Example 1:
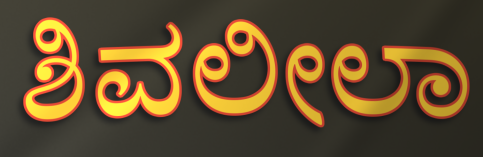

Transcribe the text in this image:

ಶಿವಲೀಲಾ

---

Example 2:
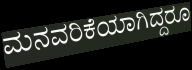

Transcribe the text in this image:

ಮನವರಿಕೆಯಾಗಿದ್ದರೂ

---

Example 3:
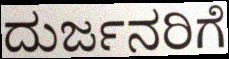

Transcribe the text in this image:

ದುರ್ಜನರಿಗೆ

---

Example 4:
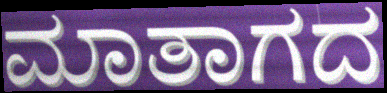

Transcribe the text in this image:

ಮಾತಾಗದ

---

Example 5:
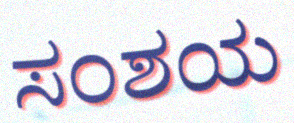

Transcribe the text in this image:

ಸಂಶಯ